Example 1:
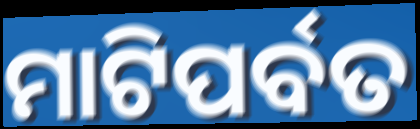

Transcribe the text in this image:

ମାଟିପର୍ବତ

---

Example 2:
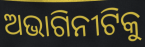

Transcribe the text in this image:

ଅଭାଗିନୀଟିକୁ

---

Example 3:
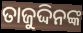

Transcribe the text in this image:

ତାଜୁଦ୍ଦିନଙ୍କ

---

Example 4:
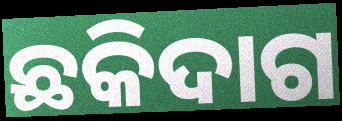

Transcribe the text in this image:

ଛକିଦାଗ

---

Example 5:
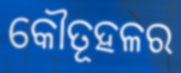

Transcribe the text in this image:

କୌତୂହଳର